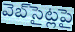
వెబ్‌సైట్లపై